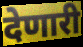
देणारी